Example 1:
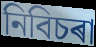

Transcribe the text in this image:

নিবিচৰা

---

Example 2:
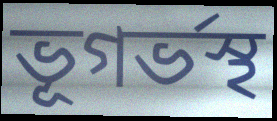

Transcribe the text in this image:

ভূগৰ্ভস্থ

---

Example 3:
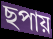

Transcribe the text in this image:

ছপায়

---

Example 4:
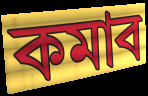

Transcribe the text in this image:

কমাব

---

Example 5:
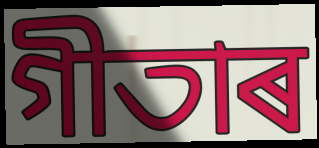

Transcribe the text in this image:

গীতাৰ